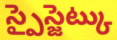
స్పైస్జెట్కు